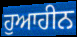
ਹੁਆਹੀਨ